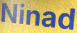
Ninad